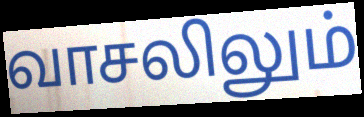
வாசலிலும்